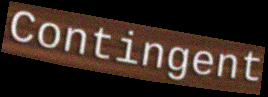
Contingent